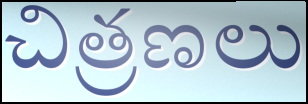
చిత్రణలు